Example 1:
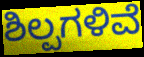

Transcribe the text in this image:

ಶಿಲ್ಪಗಳಿವೆ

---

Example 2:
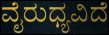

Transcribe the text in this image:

ವೈರುಧ್ಯವಿದೆ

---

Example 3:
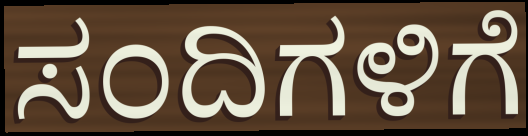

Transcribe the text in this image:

ಸಂದಿಗಳಿಗೆ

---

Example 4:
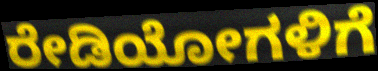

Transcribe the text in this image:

ರೇಡಿಯೋಗಳಿಗೆ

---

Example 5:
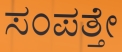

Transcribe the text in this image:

ಸಂಪತ್ತೇ